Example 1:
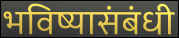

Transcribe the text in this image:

भविष्यासंबंधी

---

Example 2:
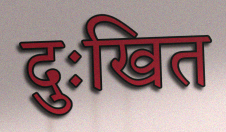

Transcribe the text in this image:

दुःखित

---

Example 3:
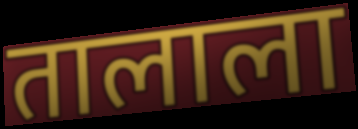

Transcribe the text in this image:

तालाला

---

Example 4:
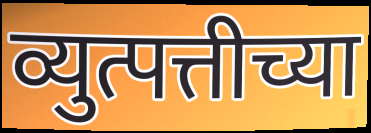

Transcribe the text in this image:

व्युत्पत्तीच्या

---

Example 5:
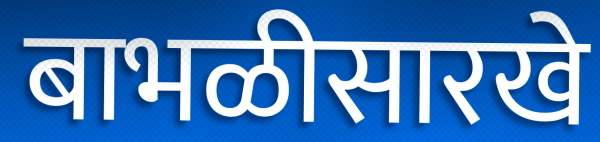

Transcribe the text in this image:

बाभळीसारखे